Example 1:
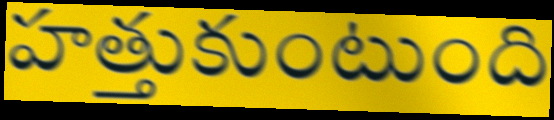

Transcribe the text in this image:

హత్తుకుంటుంది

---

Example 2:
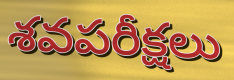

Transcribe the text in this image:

శవపరీక్షలు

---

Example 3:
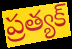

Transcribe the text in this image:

ప్రత్యక్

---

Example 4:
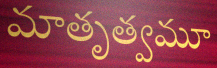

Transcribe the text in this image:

మాతృత్వమూ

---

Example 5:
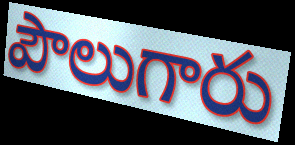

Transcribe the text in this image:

పౌలుగారు